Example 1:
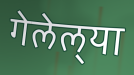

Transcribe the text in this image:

गेलेल्या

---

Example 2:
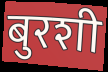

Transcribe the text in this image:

बुरशी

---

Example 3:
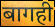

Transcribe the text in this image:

बागही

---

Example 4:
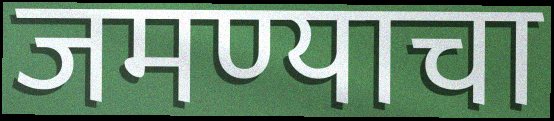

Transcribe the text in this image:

जमण्याचा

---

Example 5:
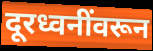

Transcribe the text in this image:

दूरध्वनींवरून